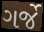
ગર્જે